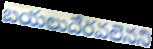
బయలుదేరవలెనని